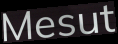
Mesut